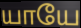
யாயே